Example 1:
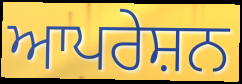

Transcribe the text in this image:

ਆਪਰੇਸ਼ਨ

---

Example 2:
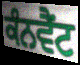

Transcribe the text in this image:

ਕੰਨਵੈਂਟ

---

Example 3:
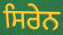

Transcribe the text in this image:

ਸਿਰੇਨ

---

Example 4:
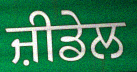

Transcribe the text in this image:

ਜ਼ੀਡੇਲ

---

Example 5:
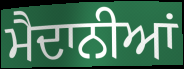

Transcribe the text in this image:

ਮੈਦਾਨੀਆਂ